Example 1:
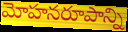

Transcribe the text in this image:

మోహనరూపాన్ని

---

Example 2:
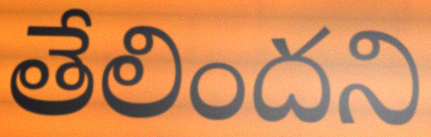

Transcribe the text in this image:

తేలిందని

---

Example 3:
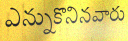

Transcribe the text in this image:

ఎన్నుకొనినవారు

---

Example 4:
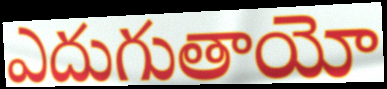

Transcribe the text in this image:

ఎదుగుతాయో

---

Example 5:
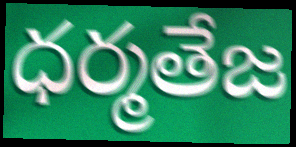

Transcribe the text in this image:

ధర్మతేజ